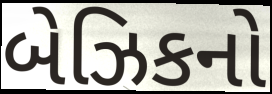
બેઝિકનો